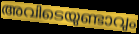
അവിടെയുണ്ടാവും